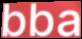
bba